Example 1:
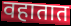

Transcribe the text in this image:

वहातात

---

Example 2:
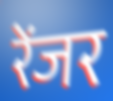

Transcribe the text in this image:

रेंजर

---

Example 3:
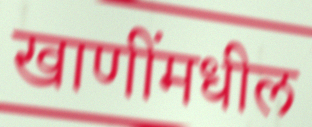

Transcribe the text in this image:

खाणींमधील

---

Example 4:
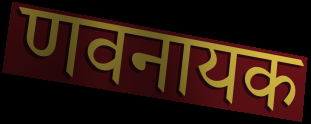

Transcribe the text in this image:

णवनायक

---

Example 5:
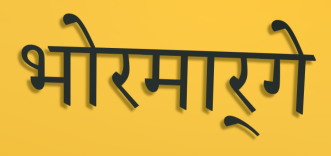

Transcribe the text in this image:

भोरमार्गे